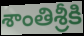
శాంతిశ్రీకి